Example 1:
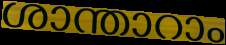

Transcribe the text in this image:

ശാന്താറാം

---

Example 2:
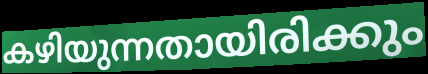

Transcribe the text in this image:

കഴിയുന്നതായിരിക്കും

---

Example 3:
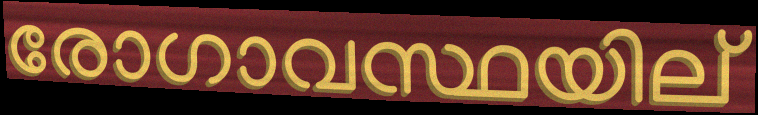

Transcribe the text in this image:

രോഗാവസ്ഥയില്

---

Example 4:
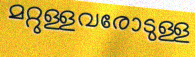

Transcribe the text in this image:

മറ്റുള്ളവരോടുള്ള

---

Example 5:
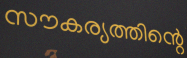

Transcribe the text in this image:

സൗകര്യത്തിന്റെ